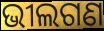
ଭୀଲଗଣ